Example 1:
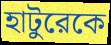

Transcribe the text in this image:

হাটুরেকে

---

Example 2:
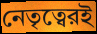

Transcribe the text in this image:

নেতৃত্বেরই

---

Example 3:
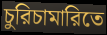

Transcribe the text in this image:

চুরিচামারিতে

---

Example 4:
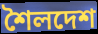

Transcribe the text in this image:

শৈলদেশ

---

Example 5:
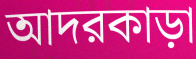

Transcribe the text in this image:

আদরকাড়া